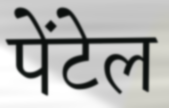
पेंटेल